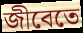
জীবেতে